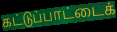
கட்டுப்பாட்டைக்